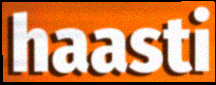
haasti